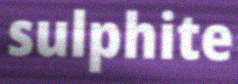
sulphite